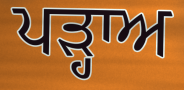
ਪੜ੍ਹਾਅ